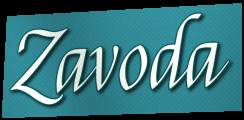
Zavoda